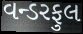
વન્ડરફુલ